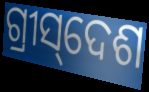
ଗ୍ରୀସ୍‌ଦେଶ